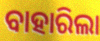
ବାହାରିଲା